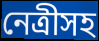
নেত্রীসহ